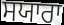
ਸਯਾਰਾ